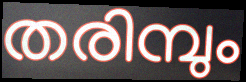
തരിമ്പും